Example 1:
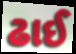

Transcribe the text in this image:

ઢાઈ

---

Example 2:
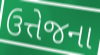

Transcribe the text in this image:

ઉત્તેજના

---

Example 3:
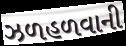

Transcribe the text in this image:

ઝળહળવાની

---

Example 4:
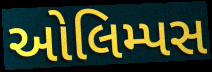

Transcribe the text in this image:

ઓલિમ્પસ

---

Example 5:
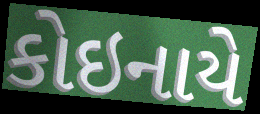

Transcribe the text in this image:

કોઇનાયે